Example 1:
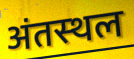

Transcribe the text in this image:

अंतस्थल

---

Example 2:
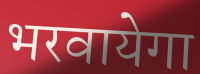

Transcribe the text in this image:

भरवायेगा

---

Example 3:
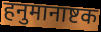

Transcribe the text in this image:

हनुमानाष्टक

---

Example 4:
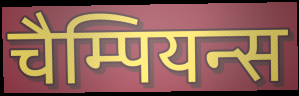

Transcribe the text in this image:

चैम्पियन्स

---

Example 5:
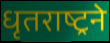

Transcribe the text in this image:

धृतराष्ट्रने